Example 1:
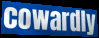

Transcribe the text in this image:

cowardly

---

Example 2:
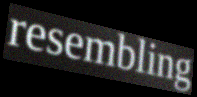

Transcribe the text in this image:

resembling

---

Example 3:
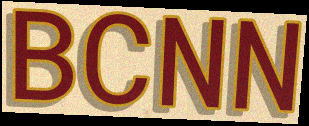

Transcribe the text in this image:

BCNN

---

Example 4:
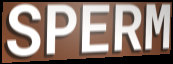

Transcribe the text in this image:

SPERM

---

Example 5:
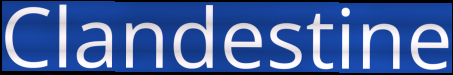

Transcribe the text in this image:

Clandestine